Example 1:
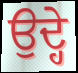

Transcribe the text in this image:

ਉਦ੍ਹੇ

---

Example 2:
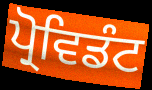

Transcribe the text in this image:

ਪ੍ਰੋਵਿਡੰਟ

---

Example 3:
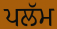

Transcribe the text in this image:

ਪਲੱਮ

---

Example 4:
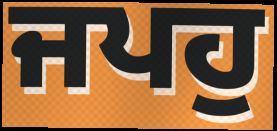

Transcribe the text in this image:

ਜਪਹੁ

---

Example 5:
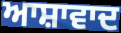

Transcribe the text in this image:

ਆਸ਼ਾਵਾਦ